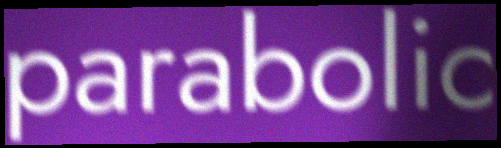
parabolic